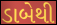
ડાબેથી